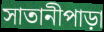
সাতানীপাড়া